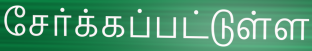
சேர்க்கப்பட்டுள்ள